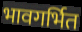
भावगर्भित